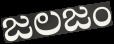
జలజం